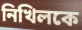
নিখিলকে